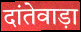
दांतेवाड़ा